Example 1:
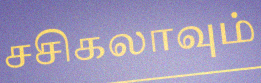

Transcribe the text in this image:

சசிகலாவும்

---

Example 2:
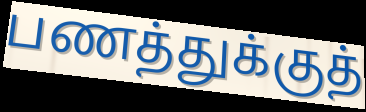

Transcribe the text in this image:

பணத்துக்குத்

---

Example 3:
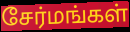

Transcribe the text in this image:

சேர்மங்கள்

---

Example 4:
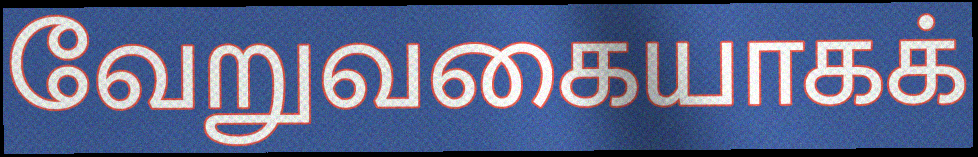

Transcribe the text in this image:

வேறுவகையாகக்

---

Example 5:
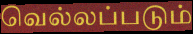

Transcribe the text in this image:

வெல்லப்படும்